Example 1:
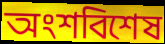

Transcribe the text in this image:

অংশবিশেষ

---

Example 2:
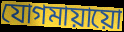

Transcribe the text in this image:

যোগমায়ায়ো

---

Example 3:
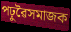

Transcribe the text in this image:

পঢ়ুৱৈসমাজক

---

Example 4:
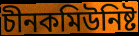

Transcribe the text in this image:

চীনকমিউনিষ্ট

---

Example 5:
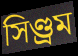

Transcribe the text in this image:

সিণ্ড্ৰম